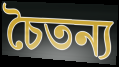
চৈতন্য